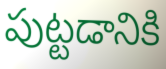
పుట్టడానికి